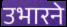
उभारने